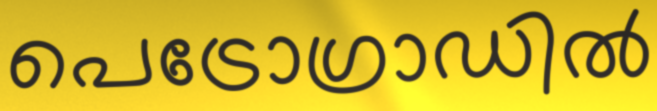
പെട്രോഗ്രാഡിൽ